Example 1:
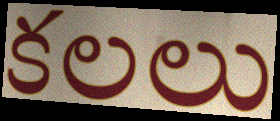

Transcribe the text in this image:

కలలు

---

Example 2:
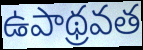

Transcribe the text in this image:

ఉపాథ్రవత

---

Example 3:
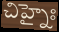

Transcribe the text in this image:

చిహ్నైః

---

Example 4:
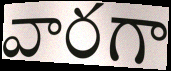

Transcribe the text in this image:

వారగా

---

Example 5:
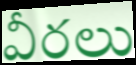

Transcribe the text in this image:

వీరలు